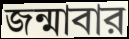
জন্মাবার